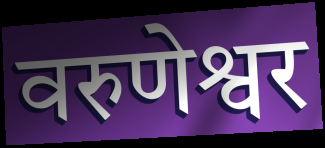
वरुणेश्वर